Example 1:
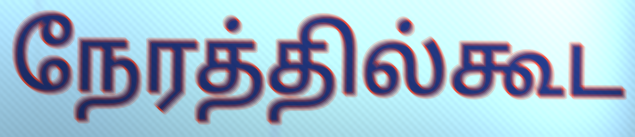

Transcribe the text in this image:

நேரத்தில்கூட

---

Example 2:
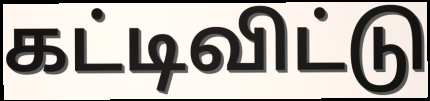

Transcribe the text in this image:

கட்டிவிட்டு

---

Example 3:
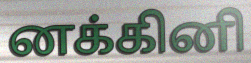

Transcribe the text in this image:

னக்கினி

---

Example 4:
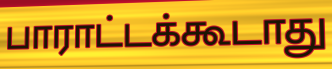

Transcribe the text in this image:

பாராட்டக்கூடாது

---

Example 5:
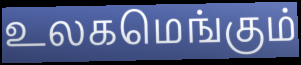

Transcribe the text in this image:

உலகமெங்கும்